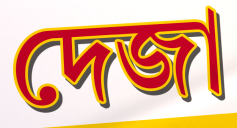
দেজা